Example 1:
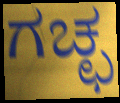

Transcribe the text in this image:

ಗಚ್ಛ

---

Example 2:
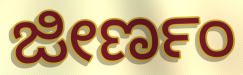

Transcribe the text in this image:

ಜೀರ್ಣಂ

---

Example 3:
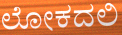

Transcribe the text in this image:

ಲೋಕದಲಿ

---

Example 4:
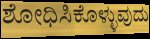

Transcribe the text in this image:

ಶೋಧಿಸಿಕೊಳ್ಳುವುದು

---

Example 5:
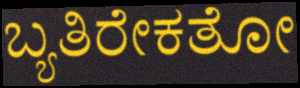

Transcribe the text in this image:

ಬ್ಯತಿರೇಕತೋ